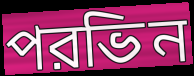
পরভিন